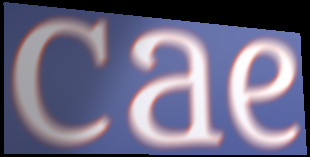
cae